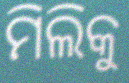
ମିଲିକୁ